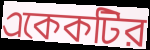
একেকটির